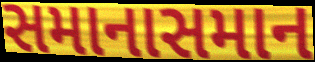
સમાનાસમાન